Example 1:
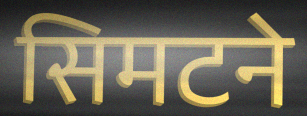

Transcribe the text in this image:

सिमटने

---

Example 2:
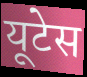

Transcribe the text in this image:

यूटेस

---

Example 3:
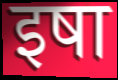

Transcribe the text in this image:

इषा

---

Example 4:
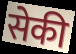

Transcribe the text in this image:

सेकी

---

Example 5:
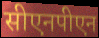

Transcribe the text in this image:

सीएनपीएन